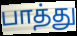
பாத்து